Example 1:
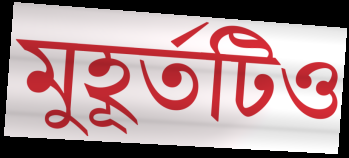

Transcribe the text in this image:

মুহূর্তটিও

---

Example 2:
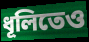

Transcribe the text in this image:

ধূলিতেও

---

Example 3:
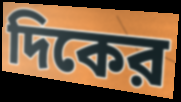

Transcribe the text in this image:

দিকের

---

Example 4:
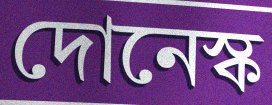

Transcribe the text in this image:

দোনেস্ক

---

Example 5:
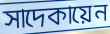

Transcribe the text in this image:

সাদেকায়েন